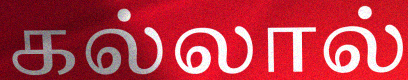
கல்லால்